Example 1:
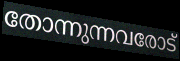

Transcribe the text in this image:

തോന്നുന്നവരോട്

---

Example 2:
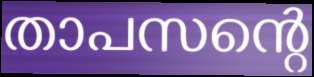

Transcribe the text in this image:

താപസന്റെ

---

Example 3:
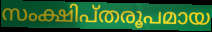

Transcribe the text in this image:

സംക്ഷിപ്തരൂപമായ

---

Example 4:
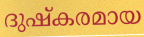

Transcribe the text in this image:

ദുഷ്കരമായ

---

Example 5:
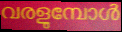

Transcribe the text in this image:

വരളുമ്പോൾ